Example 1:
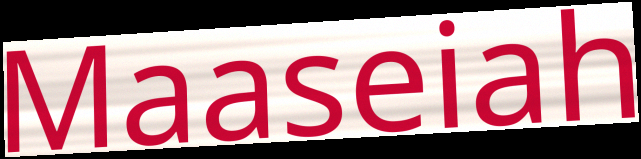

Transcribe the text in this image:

Maaseiah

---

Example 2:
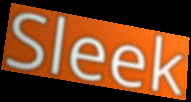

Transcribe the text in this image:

Sleek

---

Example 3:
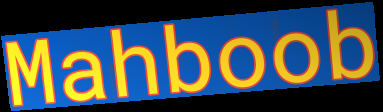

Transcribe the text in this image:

Mahboob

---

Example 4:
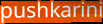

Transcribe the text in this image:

pushkarini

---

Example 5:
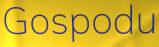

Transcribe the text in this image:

Gospodu